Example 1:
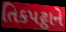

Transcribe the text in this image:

તિકપટ્ઠાને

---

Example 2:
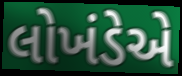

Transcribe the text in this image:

લોખંડેએ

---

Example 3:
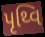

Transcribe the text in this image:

પૃથ્વિ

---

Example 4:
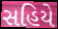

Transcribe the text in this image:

સહિયે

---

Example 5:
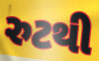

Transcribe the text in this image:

રુટથી